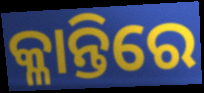
କ୍ଳାନ୍ତିରେ